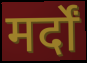
मर्दों